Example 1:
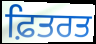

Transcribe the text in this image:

ਫ਼ਿਤਰਤ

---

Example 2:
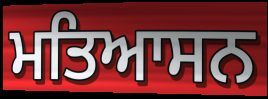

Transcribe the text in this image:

ਮਤਿਆਸਨ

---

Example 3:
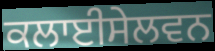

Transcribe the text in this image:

ਕਲਾਈਸੇਲਵਨ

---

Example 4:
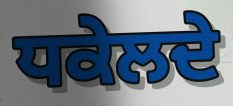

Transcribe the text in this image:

ਧਕੇਲਦੇ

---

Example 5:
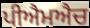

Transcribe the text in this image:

ਪੀਐਮਐਚ